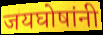
जयघोषांनी